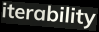
iterability